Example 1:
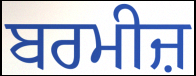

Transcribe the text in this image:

ਬਰਮੀਜ਼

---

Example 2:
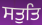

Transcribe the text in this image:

ਸਤੁਤਿ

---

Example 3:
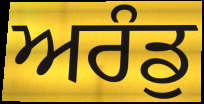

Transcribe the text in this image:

ਅਰੰਡੁ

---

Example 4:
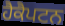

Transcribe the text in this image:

ਹੈਕੈਪਟਨ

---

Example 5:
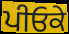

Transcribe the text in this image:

ਪੀਓਕੇ